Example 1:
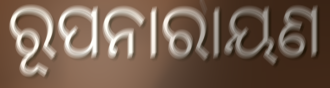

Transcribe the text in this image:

ରୂପନାରାୟଣ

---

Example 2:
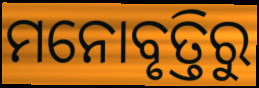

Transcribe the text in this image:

ମନୋବୃତ୍ତିରୁ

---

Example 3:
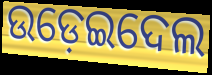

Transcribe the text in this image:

ଉଡ଼େଇଦେଲ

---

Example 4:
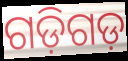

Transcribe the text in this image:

ଗଡ଼ିଗଡ଼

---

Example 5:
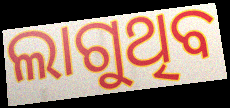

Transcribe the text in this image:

ଲାଗୁଥିବ